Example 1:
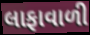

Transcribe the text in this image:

લાફાવાળી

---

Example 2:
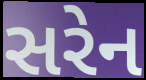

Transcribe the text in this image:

સરેન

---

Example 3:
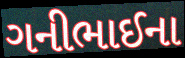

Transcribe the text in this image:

ગનીભાઈના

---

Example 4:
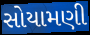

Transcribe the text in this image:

સોયામણી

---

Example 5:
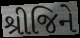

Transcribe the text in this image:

શ્રીજિને